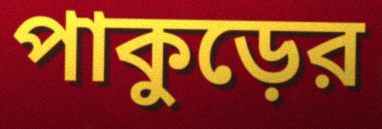
পাকুড়ের